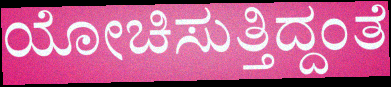
ಯೋಚಿಸುತ್ತಿದ್ದಂತೆ